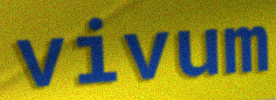
vivum